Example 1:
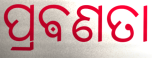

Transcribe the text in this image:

ପ୍ରଵଣତା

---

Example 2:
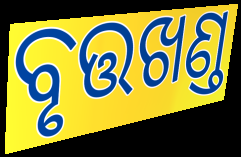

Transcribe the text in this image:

ବୃତ୍ତଖଣ୍ଡ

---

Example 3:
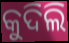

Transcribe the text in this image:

କୁଦିଲି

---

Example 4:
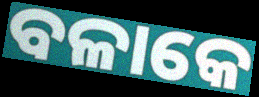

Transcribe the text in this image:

ବଳାକେ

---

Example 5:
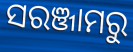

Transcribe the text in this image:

ସରଞ୍ଜାମରୁ